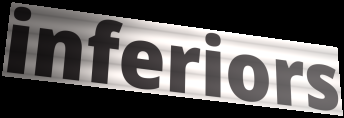
inferiors